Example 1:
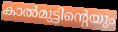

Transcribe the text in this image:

കാൽമുട്ടിന്റെയും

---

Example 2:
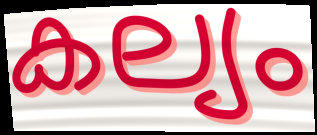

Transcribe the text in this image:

കല്യം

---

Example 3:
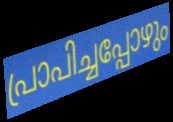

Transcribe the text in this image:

പ്രാപിച്ചപ്പോഴും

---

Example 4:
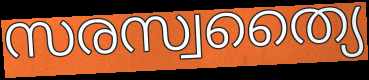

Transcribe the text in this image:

സരസ്വത്യൈ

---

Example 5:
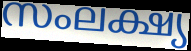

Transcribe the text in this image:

സംലക്ഷ്യ